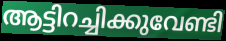
ആട്ടിറച്ചിക്കുവേണ്ടി